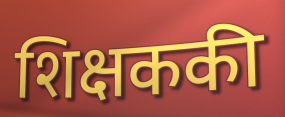
शिक्षककी